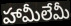
హామీలేమీ